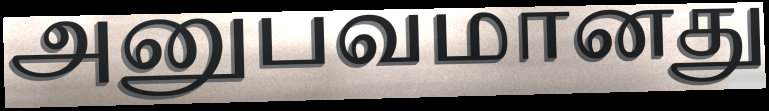
அனுபவமானது